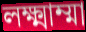
লক্ষ্মাম্মা